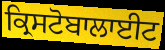
ਕ੍ਰਿਸਟੋਬਾਲਾਈਟ